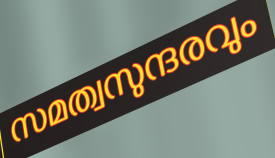
സമത്വസുന്ദരവും